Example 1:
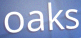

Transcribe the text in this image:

oaks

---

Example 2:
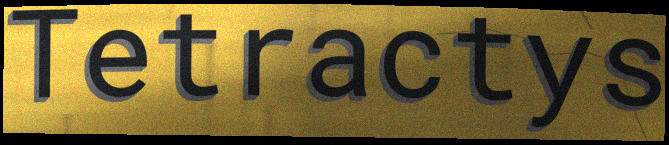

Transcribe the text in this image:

Tetractys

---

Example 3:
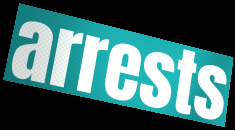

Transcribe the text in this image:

arrests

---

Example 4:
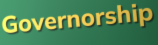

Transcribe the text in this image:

Governorship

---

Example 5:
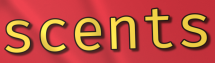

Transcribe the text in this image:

scents